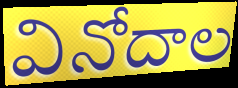
వినోదాల